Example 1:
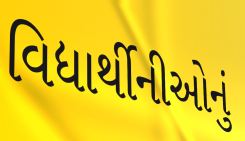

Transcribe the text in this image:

વિદ્યાર્થીનીઓનું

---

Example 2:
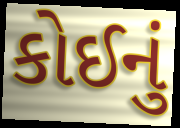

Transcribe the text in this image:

કોઈનું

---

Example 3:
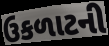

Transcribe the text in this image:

ઉકળાટની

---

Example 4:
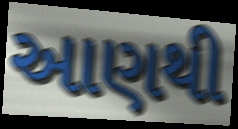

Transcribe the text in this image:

આણથી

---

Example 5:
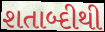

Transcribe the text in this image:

શતાબ્દીથી